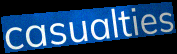
casualties